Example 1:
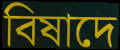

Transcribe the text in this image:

বিষাদে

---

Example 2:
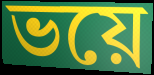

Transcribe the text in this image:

ভয়ে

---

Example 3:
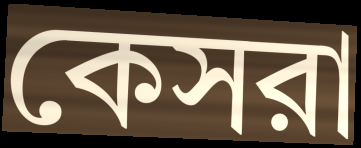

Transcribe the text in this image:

কেসরা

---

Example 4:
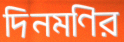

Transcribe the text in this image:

দিনমণির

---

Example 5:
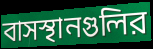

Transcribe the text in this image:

বাসস্থানগুলির